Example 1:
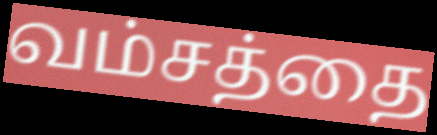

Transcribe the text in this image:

வம்சத்தை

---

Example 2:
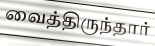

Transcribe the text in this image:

வைத்திருந்தார்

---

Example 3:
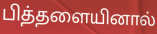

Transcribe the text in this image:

பித்தளையினால்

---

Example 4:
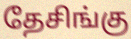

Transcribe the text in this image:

தேசிங்கு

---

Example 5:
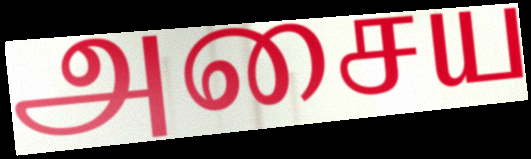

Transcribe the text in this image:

அசைய